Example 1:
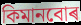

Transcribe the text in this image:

কিমানবোৰ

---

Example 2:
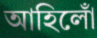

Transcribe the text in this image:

আহিলোঁ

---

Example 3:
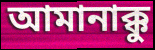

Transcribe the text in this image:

আমানাক্কু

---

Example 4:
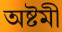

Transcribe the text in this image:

অষ্টমী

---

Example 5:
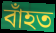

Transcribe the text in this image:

বাঁহত